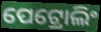
ପେଟ୍ରୋଲିଂ